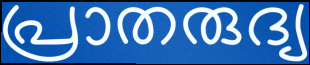
പ്രാതരുദ്യ